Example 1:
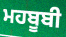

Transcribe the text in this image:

ਮਹਬੂਬੀ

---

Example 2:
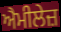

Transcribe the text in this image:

ਐਮੀਲੇਜ਼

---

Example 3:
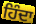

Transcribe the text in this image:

ਹਿੰਦਾ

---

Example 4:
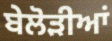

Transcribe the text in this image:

ਬੇਲੋੜੀਆਂ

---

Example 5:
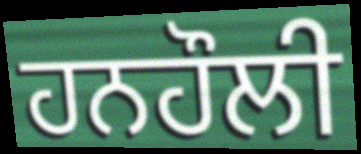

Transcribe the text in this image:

ਹਨਹੌਲੀ